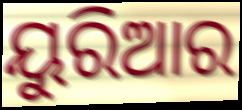
ୟୁରିଆର